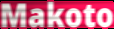
Makoto